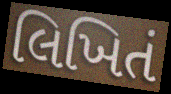
લિખિતં